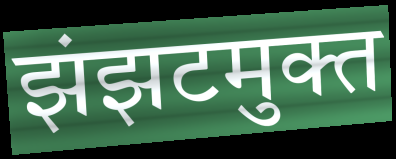
झंझटमुक्त